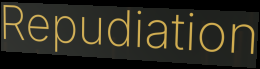
Repudiation